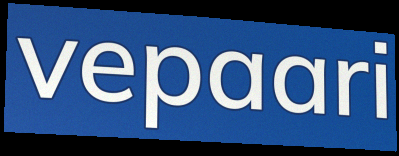
vepaari